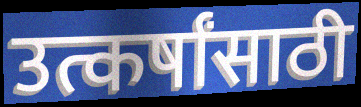
उत्कर्षांसाठी